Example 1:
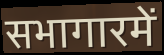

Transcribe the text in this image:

सभागारमें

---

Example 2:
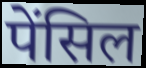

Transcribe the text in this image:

पेंसिल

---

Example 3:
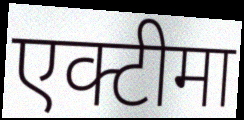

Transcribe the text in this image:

एक्टीमा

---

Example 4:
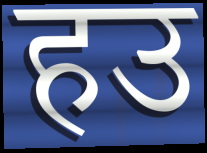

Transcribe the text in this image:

हउ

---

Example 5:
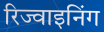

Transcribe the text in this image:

रिज्वाइनिंग